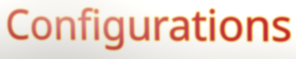
Configurations